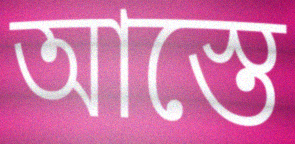
আস্তে